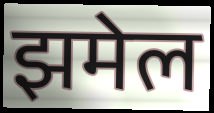
झमेल